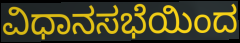
ವಿಧಾನಸಭೆಯಿಂದ